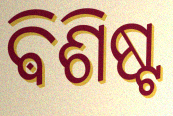
ଵିଶିଷ୍ଟ